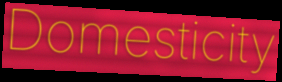
Domesticity